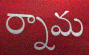
ర్నామ